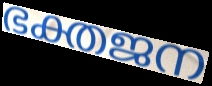
ഭക്തജന